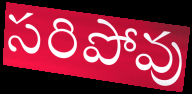
సరిపోవు